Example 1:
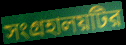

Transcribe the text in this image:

সংগ্রহালয়টির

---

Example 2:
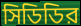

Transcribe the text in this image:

সিডিডির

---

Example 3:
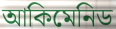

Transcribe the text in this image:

আকিমেনিড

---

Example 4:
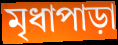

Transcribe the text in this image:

মৃধাপাড়া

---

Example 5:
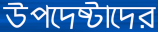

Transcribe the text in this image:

উপদেষ্টাদের